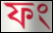
ফং